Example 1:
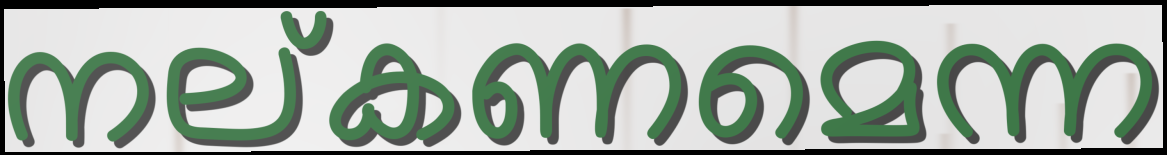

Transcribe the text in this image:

നല്കണമെന്ന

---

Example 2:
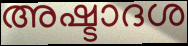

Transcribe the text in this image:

അഷ്ടാദശ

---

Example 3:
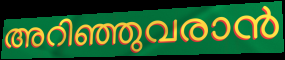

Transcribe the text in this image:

അറിഞ്ഞുവരാൻ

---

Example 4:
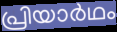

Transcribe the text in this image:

പ്രിയാർഥം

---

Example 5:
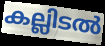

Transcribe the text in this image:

കല്ലിടൽ